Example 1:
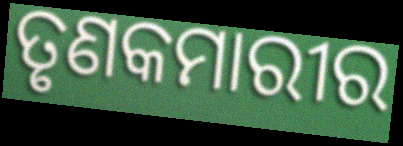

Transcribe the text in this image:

ତୃଣକମାରୀର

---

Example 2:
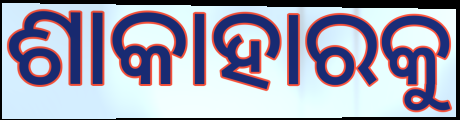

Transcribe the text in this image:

ଶାକାହାରକୁ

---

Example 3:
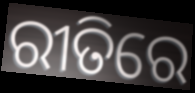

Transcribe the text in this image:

ରୀତିରେ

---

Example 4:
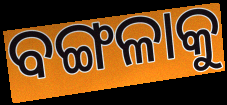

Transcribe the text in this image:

ବଙ୍ଗଳାକୁ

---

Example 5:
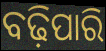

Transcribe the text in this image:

ବଢ଼ିପାରି